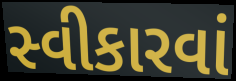
સ્વીકારવાં